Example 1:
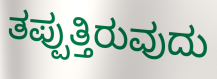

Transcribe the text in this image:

ತಪ್ಪುತ್ತಿರುವುದು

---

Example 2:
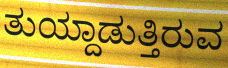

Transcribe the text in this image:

ತುಯ್ದಾಡುತ್ತಿರುವ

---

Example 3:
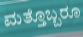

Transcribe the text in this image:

ಮತ್ತೊಬ್ಬರೂ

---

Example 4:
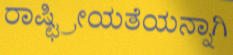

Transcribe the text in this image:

ರಾಷ್ಟ್ರೀಯತೆಯನ್ನಾಗಿ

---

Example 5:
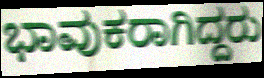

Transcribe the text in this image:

ಭಾವುಕರಾಗಿದ್ದರು